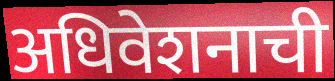
अधिवेशनाची